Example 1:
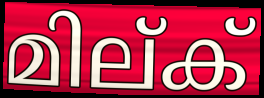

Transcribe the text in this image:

മില്ക്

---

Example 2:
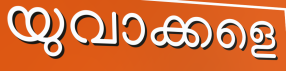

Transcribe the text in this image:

യുവാക്കളെ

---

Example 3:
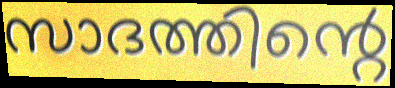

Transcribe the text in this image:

സാദത്തിന്റെ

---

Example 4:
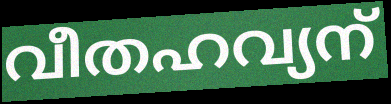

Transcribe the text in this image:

വീതഹവ്യന്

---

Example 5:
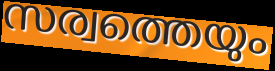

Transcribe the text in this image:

സര്വത്തെയും